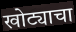
खोट्याचा